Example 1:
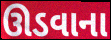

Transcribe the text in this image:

ઊડવાના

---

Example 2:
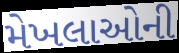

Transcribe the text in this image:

મેખલાઓની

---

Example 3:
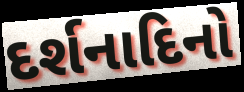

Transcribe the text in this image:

દર્શનાદિનો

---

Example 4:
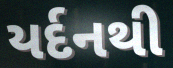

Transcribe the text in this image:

યર્દનથી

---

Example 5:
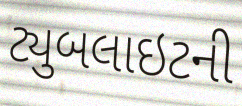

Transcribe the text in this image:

ટ્યુબલાઇટની